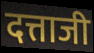
दत्ताजी